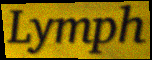
Lymph